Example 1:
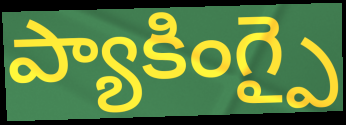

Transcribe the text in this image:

ప్యాకింగ్పై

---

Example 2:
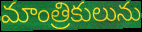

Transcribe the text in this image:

మాంత్రికులును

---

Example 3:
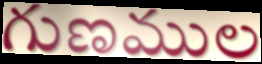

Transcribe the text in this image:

గుణముల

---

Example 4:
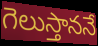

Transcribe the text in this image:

గెలుస్తాననే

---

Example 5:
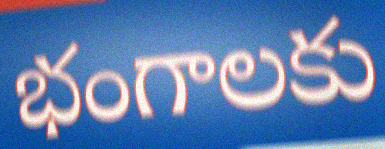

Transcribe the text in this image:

భంగాలకు